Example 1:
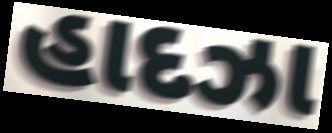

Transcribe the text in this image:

હાદઝા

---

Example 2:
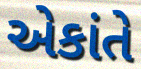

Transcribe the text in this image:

એકાંતે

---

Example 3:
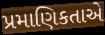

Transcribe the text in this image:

પ્રમાણિકતાએ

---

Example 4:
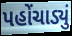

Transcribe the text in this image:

પહોંચાડ્યું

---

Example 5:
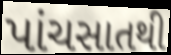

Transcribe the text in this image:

પાંચસાતથી